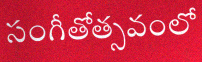
సంగీతోత్సవంలో